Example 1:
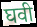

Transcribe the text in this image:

घवी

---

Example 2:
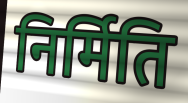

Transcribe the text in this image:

निर्मिति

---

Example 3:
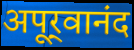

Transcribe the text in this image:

अपूर्वानंद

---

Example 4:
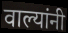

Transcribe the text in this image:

वाल्यांनी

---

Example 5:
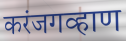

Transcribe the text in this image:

करंजगव्हाण